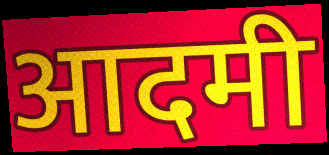
आदमी